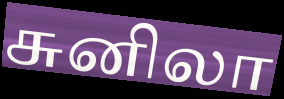
சுனிலா